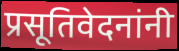
प्रसूतिवेदनांनी